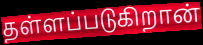
தள்ளப்படுகிறான்